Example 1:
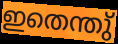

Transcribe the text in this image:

ഇതെന്തു്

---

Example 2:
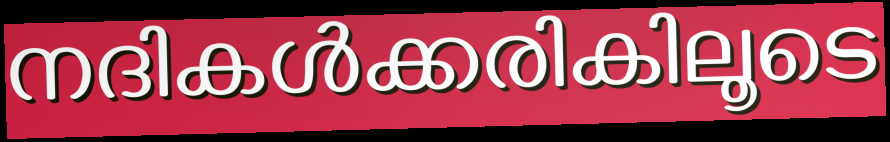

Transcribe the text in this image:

നദികൾക്കരികിലൂടെ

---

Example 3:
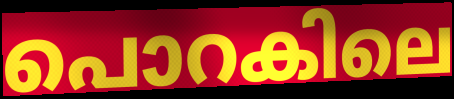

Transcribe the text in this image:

പൊറകിലെ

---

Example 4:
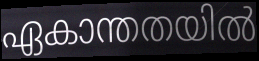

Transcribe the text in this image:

ഏകാന്തതയിൽ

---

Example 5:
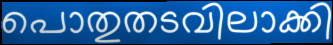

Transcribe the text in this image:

പൊതുതടവിലാക്കി